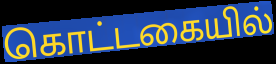
கொட்டகையில்